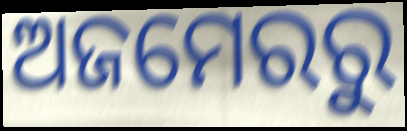
ଅଜମେରରୁ